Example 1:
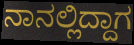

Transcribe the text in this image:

ನಾನಲ್ಲಿದ್ದಾಗ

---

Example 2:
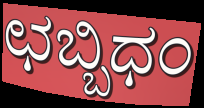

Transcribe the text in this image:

ಛಬ್ಬಿಧಂ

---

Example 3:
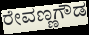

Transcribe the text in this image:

ರೇವಣ್ಣಗೌಡ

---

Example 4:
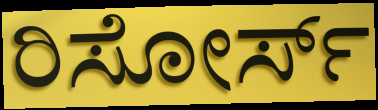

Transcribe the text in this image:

ರಿಸೋರ್ಸ್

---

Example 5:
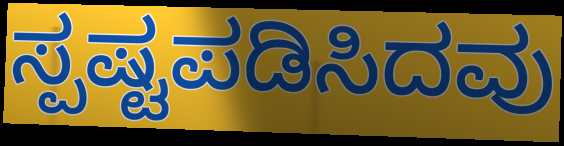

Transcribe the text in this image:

ಸ್ಪಷ್ಟಪಡಿಸಿದವು